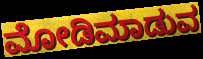
ಮೋಡಿಮಾಡುವ